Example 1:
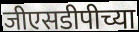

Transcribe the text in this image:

जीएसडीपीच्या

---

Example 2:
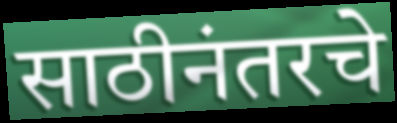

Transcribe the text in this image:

साठीनंतरचे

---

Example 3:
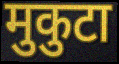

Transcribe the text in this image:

मुकुटा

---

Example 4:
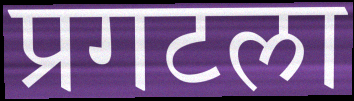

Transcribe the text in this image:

प्रगटला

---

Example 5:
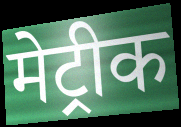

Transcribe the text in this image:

मेट्रीक